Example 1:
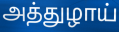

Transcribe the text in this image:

அத்துழாய்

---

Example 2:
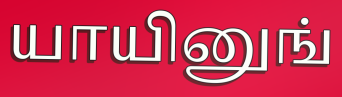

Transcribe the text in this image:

யாயினுங்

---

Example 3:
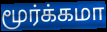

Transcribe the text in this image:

மூர்க்கமா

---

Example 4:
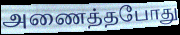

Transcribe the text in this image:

அணைத்தபோது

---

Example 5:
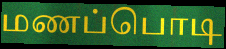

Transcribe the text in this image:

மணப்பொடி